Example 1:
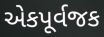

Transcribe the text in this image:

એકપૂર્વજક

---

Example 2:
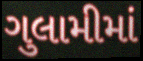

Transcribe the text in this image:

ગુલામીમાં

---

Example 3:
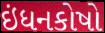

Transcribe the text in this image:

ઇંધનકોષો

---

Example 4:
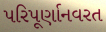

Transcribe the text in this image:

પરિપૂર્ણાનવરત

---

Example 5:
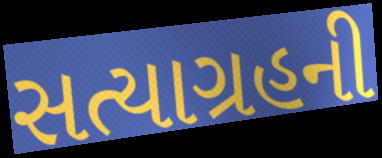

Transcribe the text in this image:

સત્યાગ્રહની